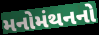
મનોમંથનનો